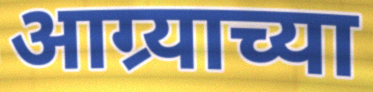
आग्र्याच्या